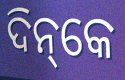
ଦିନ୍‌କେ